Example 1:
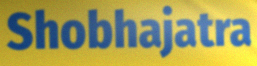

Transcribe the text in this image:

Shobhajatra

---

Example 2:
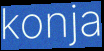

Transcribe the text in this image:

konja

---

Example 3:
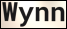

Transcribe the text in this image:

Wynn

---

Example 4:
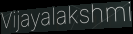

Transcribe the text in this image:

Vijayalakshmi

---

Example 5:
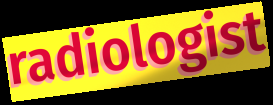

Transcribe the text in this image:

radiologist